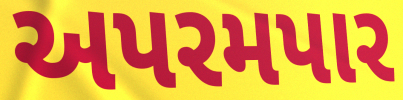
અપરમપાર